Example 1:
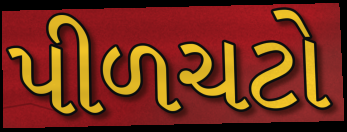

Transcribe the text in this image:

પીળચટો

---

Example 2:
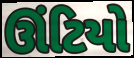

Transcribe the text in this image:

ઊંટિયો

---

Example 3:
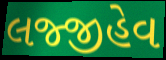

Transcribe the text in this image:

લજ્જીહેવ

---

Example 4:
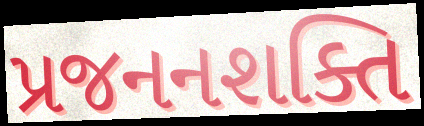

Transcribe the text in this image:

પ્રજનનશક્તિ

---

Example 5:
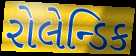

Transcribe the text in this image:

રોલેન્ડિક